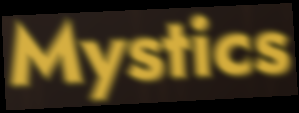
Mystics